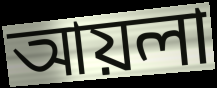
আয়লা